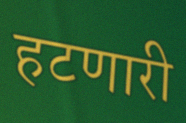
हटणारी